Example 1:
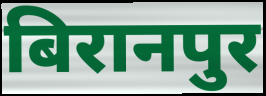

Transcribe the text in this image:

बिरानपुर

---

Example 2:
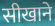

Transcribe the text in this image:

सीखाने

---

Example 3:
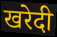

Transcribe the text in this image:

खरेदी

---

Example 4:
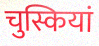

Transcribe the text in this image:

चुस्कियां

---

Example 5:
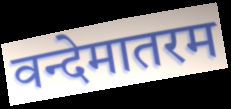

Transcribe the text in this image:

वन्देमातरम